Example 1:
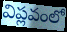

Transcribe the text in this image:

విప్లవంలో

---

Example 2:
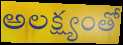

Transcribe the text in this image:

అలక్ష్యంతో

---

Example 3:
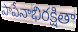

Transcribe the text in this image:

పాపేనాభిరక్షితా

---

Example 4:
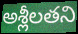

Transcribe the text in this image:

అశ్లీలతని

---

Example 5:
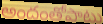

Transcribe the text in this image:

అందంతోపాటు